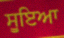
ਸੂਇਆ